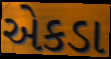
એકડા